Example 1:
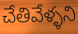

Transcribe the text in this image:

చేతివేళ్ళని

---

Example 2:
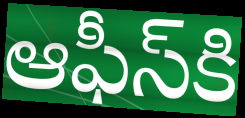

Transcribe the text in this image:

ఆఫీస్‌కి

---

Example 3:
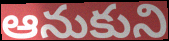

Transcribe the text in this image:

ఆనుకుని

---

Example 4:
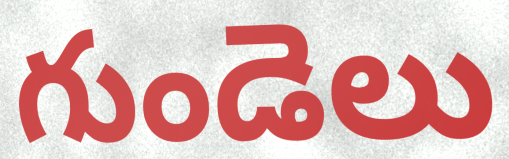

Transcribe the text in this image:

గుండెలు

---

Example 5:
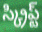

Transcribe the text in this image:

స్క్రిప్ట్